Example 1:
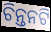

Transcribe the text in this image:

ଚିନ୍ତନଟି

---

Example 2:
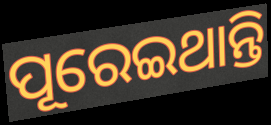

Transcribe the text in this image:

ପୂରେଇଥାନ୍ତି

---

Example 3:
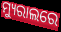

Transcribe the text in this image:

ମ୍ୟୁରାଲରେ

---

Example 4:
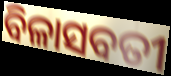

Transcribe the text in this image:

ବିଳାସବତୀ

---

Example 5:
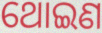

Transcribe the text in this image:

ଥୋଇଣ